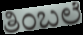
ತಿಂಬಲೆ